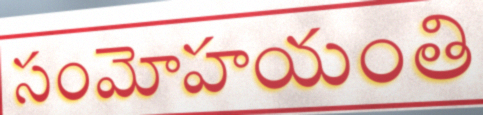
సంమోహయంతి